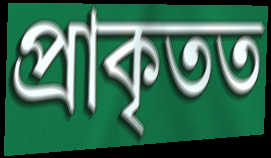
প্ৰাকৃতত